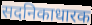
सदनिकाधारक